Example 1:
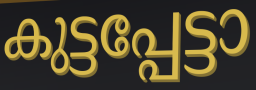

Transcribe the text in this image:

കുട്ടപ്പേട്ടാ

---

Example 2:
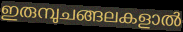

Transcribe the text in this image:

ഇരുമ്പുചങ്ങലകളാൽ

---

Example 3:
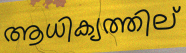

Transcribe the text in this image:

ആധിക്യത്തില്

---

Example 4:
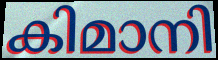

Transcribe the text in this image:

കിമാനി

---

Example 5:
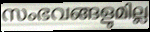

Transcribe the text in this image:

സംഭവങ്ങളുമില്ല